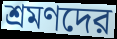
শ্রমণদের